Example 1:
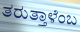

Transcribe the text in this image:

ತರುತ್ತಾಳೆಂಬ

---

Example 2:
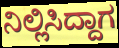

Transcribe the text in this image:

ನಿಲ್ಲಿಸಿದ್ದಾಗ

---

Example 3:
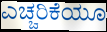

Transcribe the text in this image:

ಎಚ್ಚರಿಕೆಯೂ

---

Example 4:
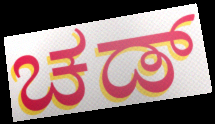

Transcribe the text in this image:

ಚಡ್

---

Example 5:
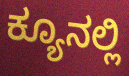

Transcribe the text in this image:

ಕ್ಯೂನಲ್ಲಿ